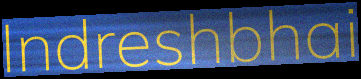
Indreshbhai